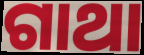
ଗାଥା